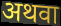
अथवा